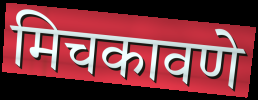
मिचकावणे